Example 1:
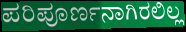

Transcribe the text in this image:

ಪರಿಪೂರ್ಣನಾಗಿರಲಿಲ್ಲ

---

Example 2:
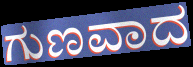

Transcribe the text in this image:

ಗುಣವಾದ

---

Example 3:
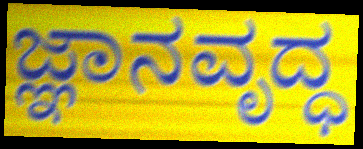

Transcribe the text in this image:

ಜ್ಞಾನವೃದ್ಧ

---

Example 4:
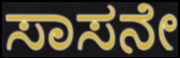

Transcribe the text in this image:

ಸಾಸನೇ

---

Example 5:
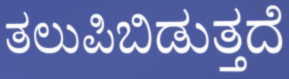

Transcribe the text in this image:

ತಲುಪಿಬಿಡುತ್ತದೆ